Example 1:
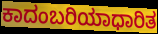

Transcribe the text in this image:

ಕಾದಂಬರಿಯಾಧಾರಿತ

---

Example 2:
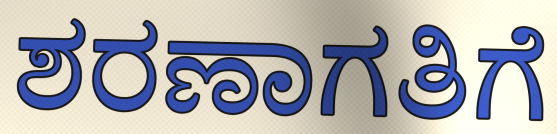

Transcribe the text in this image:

ಶರಣಾಗತಿಗೆ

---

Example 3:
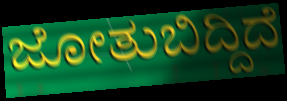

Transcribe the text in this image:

ಜೋತುಬಿದ್ದಿದೆ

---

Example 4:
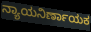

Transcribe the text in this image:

ನ್ಯಾಯನಿರ್ಣಾಯಕ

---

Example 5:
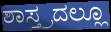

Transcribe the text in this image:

ಶಾಸ್ತ್ರದಲ್ಲೂ